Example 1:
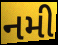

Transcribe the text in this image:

નમી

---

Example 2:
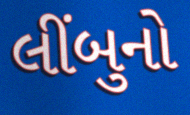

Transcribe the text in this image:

લીંબુનો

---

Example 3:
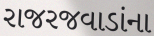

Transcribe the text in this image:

રાજરજવાડાંના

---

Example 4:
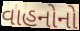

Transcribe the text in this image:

વાહનોનો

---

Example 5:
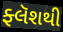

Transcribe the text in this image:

ફ્લૅશથી